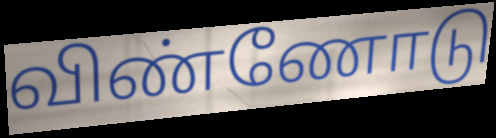
விண்ணோடு